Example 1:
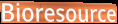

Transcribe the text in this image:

Bioresource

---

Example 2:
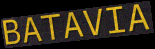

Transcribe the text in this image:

BATAVIA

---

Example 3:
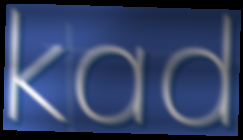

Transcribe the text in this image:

kad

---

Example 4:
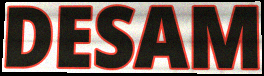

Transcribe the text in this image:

DESAM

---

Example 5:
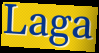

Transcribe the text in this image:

Laga